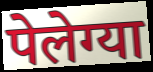
पेलेग्या